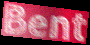
Bent